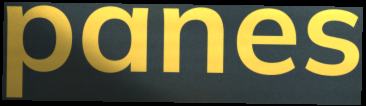
panes